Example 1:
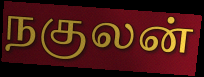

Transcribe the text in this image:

நகுலன்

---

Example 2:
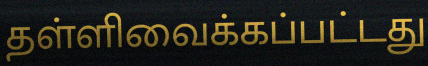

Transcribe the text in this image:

தள்ளிவைக்கப்பட்டது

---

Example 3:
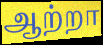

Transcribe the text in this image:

ஆற்றா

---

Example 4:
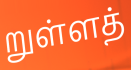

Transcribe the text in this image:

றுள்ளத்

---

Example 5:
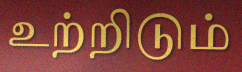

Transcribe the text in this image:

உற்றிடும்